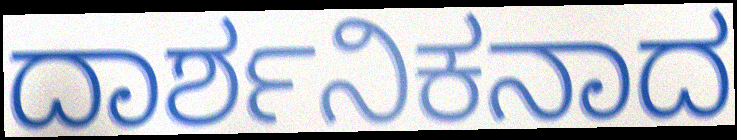
ದಾರ್ಶನಿಕನಾದ